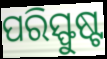
ପରିସ୍ଫୁଷ୍ଟ